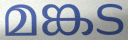
മങ്കട